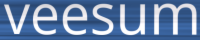
veesum